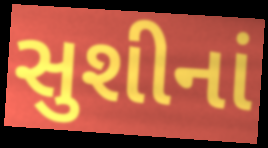
સુશીનાં